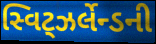
સ્વિટ્ઝર્લેન્ડની